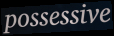
possessive